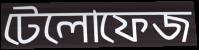
টেলোফেজ